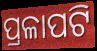
ପ୍ରଳାପଟି